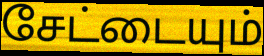
சேட்டையும்